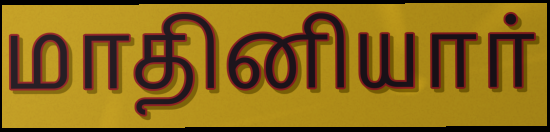
மாதினியார்